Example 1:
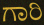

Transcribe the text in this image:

ಗಾರಿ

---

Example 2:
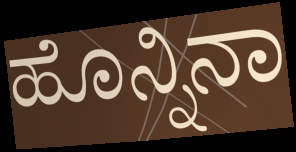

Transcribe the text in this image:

ಹೊನ್ನಿನಾ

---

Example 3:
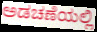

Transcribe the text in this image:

ಅಡಚಣೆಯಲ್ಲಿ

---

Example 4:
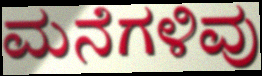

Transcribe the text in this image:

ಮನೆಗಳಿವು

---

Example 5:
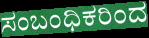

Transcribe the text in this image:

ಸಂಬಂಧಿಕರಿಂದ